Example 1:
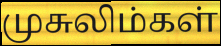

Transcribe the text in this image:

முசுலிம்கள்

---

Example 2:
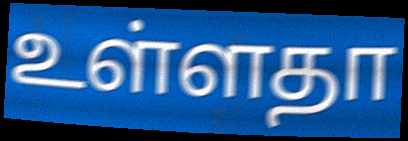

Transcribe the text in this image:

உள்ளதா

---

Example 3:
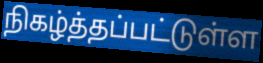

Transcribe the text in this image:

நிகழ்த்தப்பட்டுள்ள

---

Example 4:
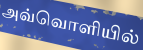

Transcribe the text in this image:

அவ்வொளியில்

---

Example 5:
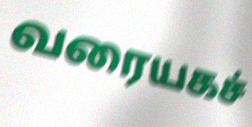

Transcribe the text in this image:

வரையகச்